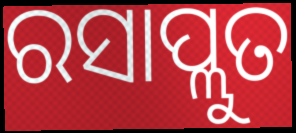
ରସାପ୍ଲୁତ